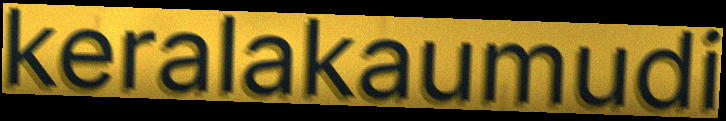
keralakaumudi